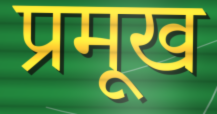
प्रमूख